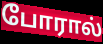
போரால்